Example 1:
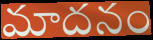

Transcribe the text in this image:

మాదనం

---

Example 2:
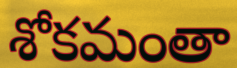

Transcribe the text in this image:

శోకమంతా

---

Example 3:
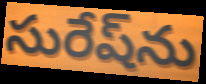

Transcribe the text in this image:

సురేష్‌ను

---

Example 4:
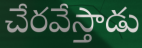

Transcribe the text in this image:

చేరవేస్తాడు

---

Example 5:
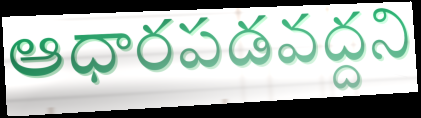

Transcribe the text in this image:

ఆధారపడవద్దని